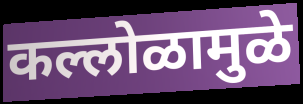
कल्लोळामुळे